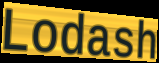
Lodash